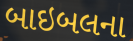
બાઇબલના